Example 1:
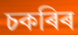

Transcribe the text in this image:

চকৰিৰ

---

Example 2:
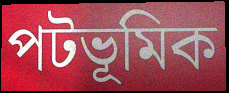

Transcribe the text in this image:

পটভূমিক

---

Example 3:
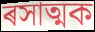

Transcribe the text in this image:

ৰসাত্মক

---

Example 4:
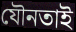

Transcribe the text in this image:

যৌনতাই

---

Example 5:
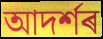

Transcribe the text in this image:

আদৰ্শৰ